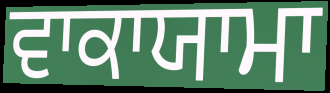
ਵਾਕਾਯਾਮਾ